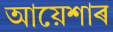
আয়েশাৰ